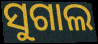
ସୁଗାଲ